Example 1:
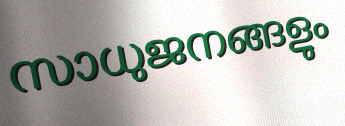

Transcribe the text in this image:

സാധുജനങ്ങളും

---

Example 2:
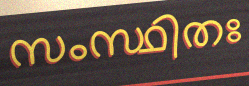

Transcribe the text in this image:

സംസ്ഥിതഃ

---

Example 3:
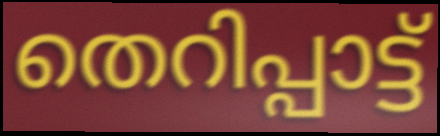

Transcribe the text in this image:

തെറിപ്പാട്ട്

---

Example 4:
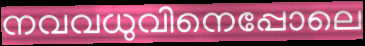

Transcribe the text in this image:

നവവധുവിനെപ്പോലെ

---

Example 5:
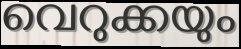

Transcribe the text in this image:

വെറുക്കയും